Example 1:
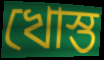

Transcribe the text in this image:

খোস্ত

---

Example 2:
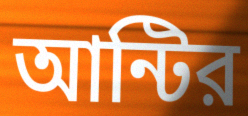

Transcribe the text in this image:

আন্টির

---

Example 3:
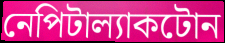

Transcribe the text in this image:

নেপিটাল্যাকটোন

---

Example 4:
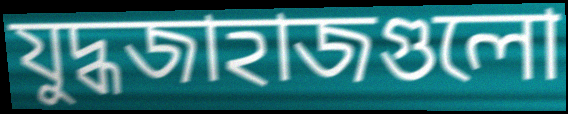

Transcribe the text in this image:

যুদ্ধজাহাজগুলো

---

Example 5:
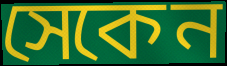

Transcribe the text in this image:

সেকেন